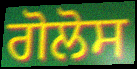
ਗੋਲੋਸ